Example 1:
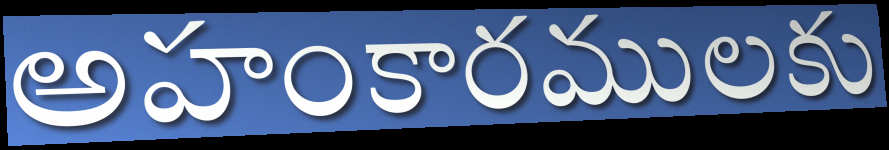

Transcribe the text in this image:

అహంకారములకు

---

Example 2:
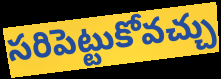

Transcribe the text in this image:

సరిపెట్టుకోవచ్చు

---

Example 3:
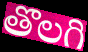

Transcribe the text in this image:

తొలగి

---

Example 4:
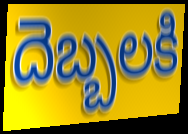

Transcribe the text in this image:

దెబ్బలకి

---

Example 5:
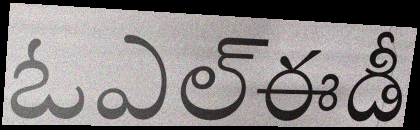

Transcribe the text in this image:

ఓఎల్ఈడీ